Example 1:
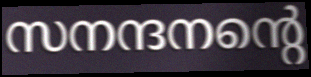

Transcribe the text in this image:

സനന്ദനന്റെ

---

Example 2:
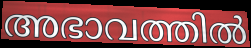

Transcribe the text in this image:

അഭാവത്തിൽ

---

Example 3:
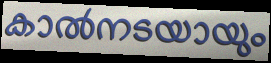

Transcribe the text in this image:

കാൽനടയായും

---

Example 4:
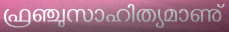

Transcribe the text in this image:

ഫ്രഞ്ചുസാഹിത്യമാണു്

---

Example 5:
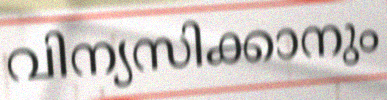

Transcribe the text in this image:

വിന്യസിക്കാനും